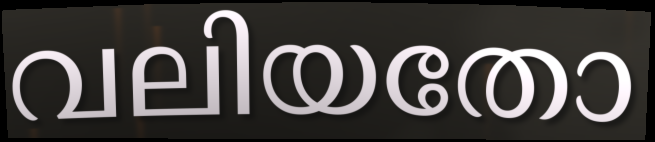
വലിയതോ